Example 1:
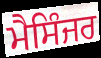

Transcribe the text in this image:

ਮੈਸਿੰਜਰ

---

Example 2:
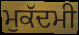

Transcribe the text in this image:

ਮੁਕੱਦਮੀ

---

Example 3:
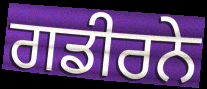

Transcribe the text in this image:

ਗਡੀਰਨੇ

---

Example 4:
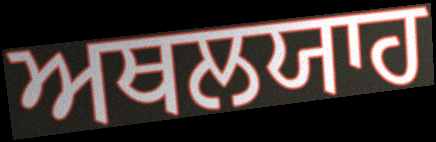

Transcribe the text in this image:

ਅਥਲਯਾਹ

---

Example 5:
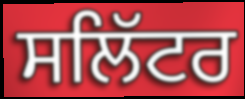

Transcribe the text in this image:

ਸਲਿੱਟਰ